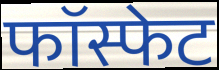
फॉस्फेट